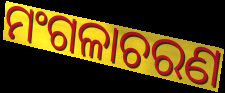
ମଂଗଳାଚରଣ